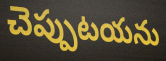
చెప్పుటయను